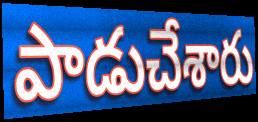
పాడుచేశారు